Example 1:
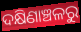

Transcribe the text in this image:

ଦକ୍ଷିଣାଞ୍ଚଳରୁ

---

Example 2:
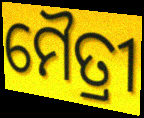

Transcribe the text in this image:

ମୈତ୍ରୀ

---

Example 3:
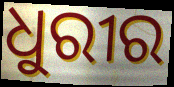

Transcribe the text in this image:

ଧୁରୀର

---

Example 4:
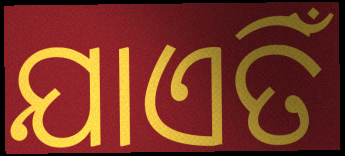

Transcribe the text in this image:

ଯାଏତିଁ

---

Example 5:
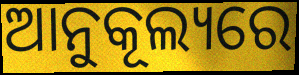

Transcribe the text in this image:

ଆନୁକୂଲ୍ୟରେ